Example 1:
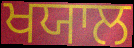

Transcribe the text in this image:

ਖਯਾਲ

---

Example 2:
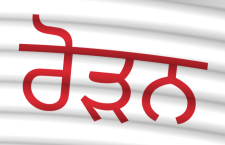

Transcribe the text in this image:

ਰੋੜਨ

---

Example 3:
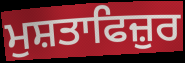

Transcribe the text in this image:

ਮੁਸ਼ਤਾਫਿਜ਼ੁਰ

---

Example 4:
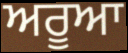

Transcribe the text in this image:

ਅਰੂਆ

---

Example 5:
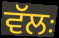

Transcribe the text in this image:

ਵੱਲਃ